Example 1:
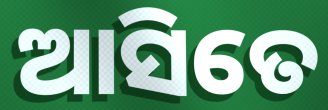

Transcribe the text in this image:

ଆସିତେ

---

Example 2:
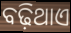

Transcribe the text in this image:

ବଢ଼ିଥାଏ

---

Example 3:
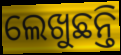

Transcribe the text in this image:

ଲେଖୁଛନ୍ତି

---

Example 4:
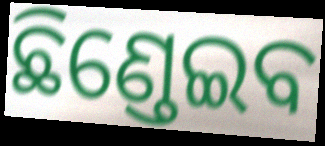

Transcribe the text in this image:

ଛିଣ୍ଡେଇବ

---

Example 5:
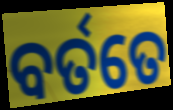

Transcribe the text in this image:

ବର୍ତତେ